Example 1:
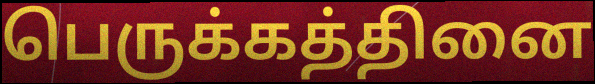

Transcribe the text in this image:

பெருக்கத்தினை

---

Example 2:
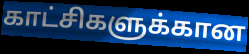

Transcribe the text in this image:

காட்சிகளுக்கான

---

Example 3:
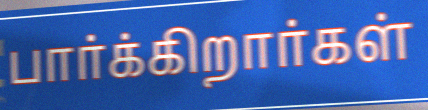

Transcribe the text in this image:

பார்க்கிறார்கள்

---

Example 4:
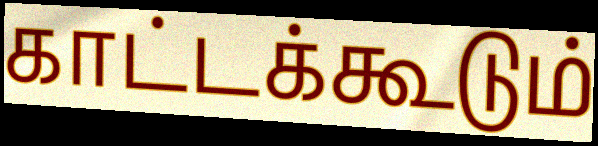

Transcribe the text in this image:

காட்டக்கூடும்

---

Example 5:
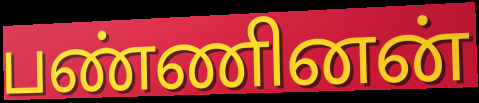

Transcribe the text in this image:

பண்ணினன்